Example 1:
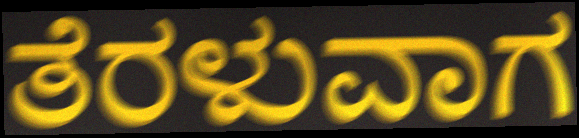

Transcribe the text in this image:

ತೆರಳುವಾಗ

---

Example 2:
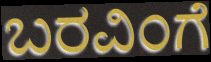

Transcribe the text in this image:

ಬರವಿಂಗೆ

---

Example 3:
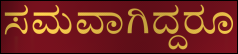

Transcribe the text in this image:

ಸಮವಾಗಿದ್ದರೂ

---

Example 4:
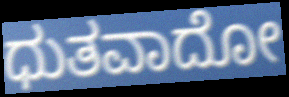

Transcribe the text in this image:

ಧುತವಾದೋ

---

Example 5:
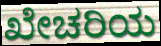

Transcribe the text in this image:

ಖೇಚರಿಯ